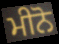
ਮੀਨੋ